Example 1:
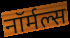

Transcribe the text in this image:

नॉर्मल्स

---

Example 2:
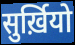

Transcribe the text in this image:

सुर्ख़ियो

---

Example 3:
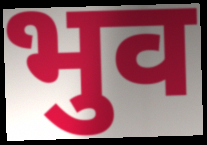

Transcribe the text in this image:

भुव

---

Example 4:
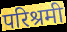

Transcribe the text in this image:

परिश्रमी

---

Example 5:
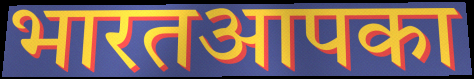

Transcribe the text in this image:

भारतआपका